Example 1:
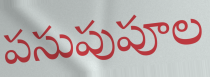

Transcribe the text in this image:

పసుపుపూల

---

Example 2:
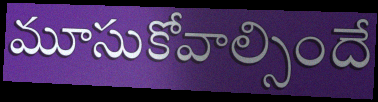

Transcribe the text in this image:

మూసుకోవాల్సిందే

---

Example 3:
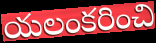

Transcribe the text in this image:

యలంకరించి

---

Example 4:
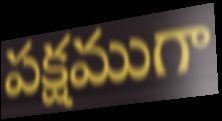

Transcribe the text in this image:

పక్షముగా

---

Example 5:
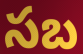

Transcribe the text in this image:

సబ